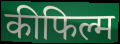
कीफिल्म